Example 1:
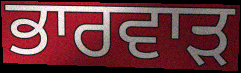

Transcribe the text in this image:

ਭਾਰਵਾੜ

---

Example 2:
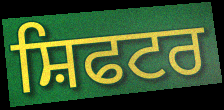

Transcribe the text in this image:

ਸ਼ਿਫਟਰ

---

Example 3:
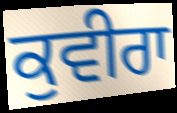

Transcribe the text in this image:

ਕੁਵੀਰਾ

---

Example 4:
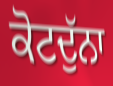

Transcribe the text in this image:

ਕੋਟਦੁੱਨਾ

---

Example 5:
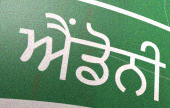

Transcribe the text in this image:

ਐਂਡੋਨੀ